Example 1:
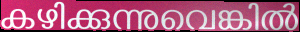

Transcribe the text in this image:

കഴിക്കുന്നുവെങ്കിൽ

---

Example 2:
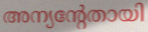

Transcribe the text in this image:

അന്യന്റേതായി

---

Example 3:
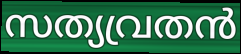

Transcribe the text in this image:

സത്യവ്രതൻ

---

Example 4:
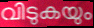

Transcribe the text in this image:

വിടുകയും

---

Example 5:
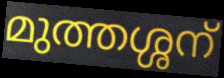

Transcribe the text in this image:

മുത്തശ്ശന്